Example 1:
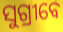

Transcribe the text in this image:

ସୁଗ୍ରୀବେ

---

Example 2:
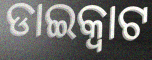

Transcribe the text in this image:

ଡାଇକ୍ଵାଟ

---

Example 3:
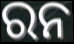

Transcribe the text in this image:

ରନ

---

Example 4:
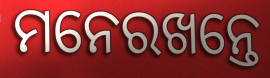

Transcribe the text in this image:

ମନେରଖନ୍ତେ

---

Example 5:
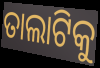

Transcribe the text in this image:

ତାଲାଟିକୁ